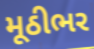
મૂઠીભર